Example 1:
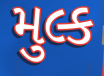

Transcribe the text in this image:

મુલ્ક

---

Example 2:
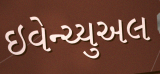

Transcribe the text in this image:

ઇવેન્ચ્યુઅલ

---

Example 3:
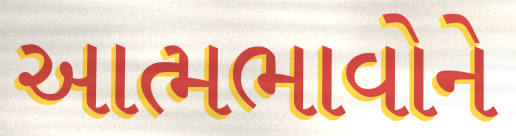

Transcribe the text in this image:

આત્મભાવોને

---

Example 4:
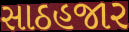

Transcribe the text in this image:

સાઠહજાર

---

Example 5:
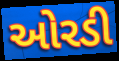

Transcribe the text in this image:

ઓરડી